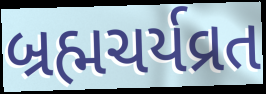
બ્રહ્મચર્યવ્રત